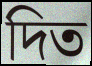
দিত